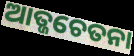
ଆତ୍ଜଚେତନା